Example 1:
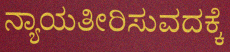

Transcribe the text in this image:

ನ್ಯಾಯತೀರಿಸುವದಕ್ಕೆ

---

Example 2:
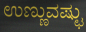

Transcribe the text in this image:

ಉಣ್ಣುವಷ್ಟು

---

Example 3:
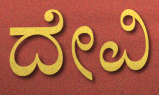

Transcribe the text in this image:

ದೇವಿ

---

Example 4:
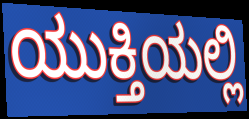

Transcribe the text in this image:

ಯುಕ್ತಿಯಲ್ಲಿ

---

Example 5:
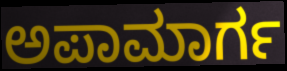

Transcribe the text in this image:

ಅಪಾಮಾರ್ಗ